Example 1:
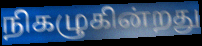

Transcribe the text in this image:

நிகழுகின்றது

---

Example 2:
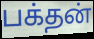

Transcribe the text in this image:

பக்தன்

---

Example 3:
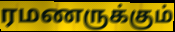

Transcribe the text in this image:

ரமணருக்கும்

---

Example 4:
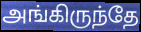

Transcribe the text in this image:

அங்கிருந்தே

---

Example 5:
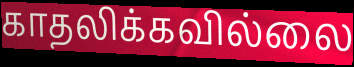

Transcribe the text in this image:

காதலிக்கவில்லை